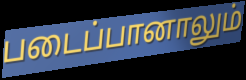
படைப்பானாலும்